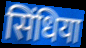
सिंधिया